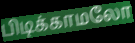
பிடிக்காமலோ